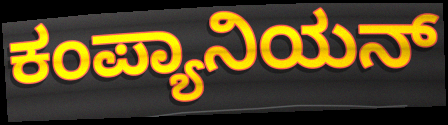
ಕಂಪ್ಯಾನಿಯನ್